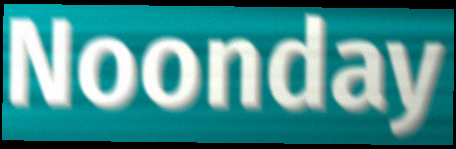
Noonday